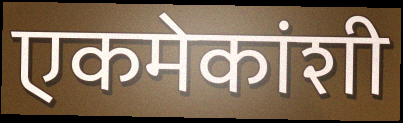
एकमेकांशी